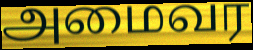
அமைவர